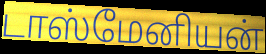
டாஸ்மேனியன்